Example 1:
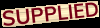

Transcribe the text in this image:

SUPPLIED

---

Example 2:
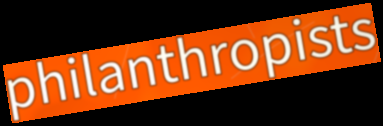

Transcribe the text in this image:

philanthropists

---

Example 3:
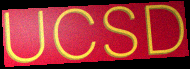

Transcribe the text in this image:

UCSD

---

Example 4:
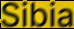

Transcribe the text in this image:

Sibia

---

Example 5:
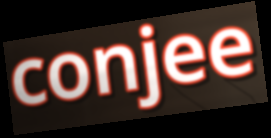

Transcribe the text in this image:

conjee